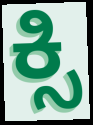
ಕ್ಸಿ